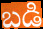
బడి